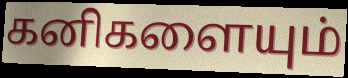
கனிகளையும்